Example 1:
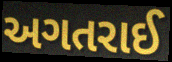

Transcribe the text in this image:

અગતરાઈ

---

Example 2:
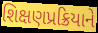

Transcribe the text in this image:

શિક્ષણપ્રક્રિયાને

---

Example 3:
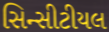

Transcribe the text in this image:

સિન્સીટીયલ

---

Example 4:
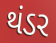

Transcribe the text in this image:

થંડર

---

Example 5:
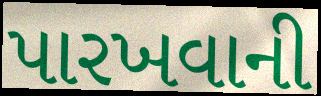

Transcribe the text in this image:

પારખવાની